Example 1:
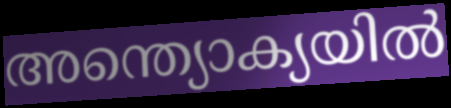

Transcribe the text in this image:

അന്ത്യൊക്യയിൽ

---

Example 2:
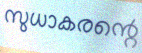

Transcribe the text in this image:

സുധാകരന്റെ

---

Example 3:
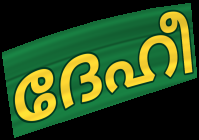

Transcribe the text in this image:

ദേഹീ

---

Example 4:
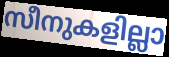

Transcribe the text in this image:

സീനുകളില്ലാ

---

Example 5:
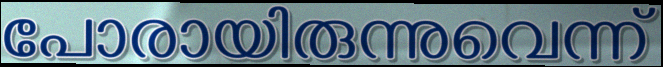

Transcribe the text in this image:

പോരായിരുന്നുവെന്ന്